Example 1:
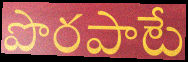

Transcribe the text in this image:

పొరపాటే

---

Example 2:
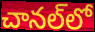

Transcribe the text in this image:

చానల్‌లో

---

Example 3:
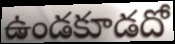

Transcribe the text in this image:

ఉండకూడదో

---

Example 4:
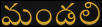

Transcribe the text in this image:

మండలి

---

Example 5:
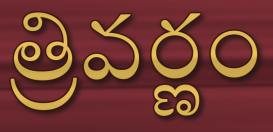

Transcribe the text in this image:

త్రివర్ణం